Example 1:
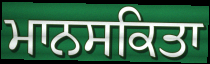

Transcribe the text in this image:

ਮਾਨਸਕਿਤਾ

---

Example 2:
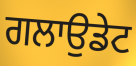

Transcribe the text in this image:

ਗਲਾਉਡੇਟ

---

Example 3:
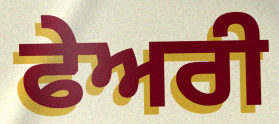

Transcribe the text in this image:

ਫੇਅਰੀ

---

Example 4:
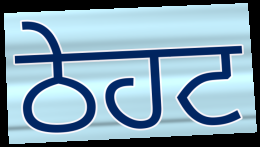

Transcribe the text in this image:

ਠੇਹਟ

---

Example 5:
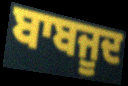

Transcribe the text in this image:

ਬਾਬਜੂਦ